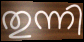
തുന്നി